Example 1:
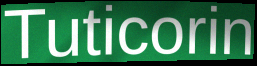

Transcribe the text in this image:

Tuticorin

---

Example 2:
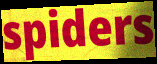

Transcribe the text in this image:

spiders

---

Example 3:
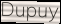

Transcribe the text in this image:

Dupuy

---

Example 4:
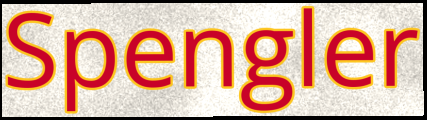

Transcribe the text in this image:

Spengler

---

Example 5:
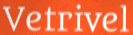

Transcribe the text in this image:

Vetrivel